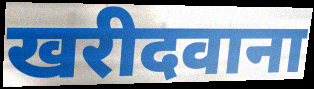
खरीदवाना